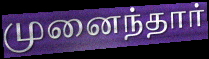
முனைந்தார்